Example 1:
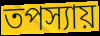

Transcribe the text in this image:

তপস্যায়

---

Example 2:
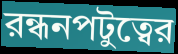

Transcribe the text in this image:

রন্ধনপটুত্বের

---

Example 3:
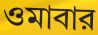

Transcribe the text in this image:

ওমাবার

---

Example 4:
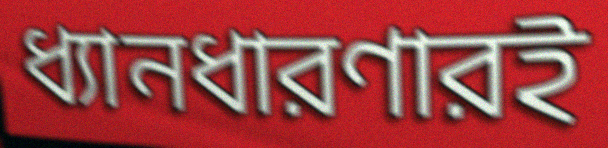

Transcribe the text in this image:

ধ্যানধারণারই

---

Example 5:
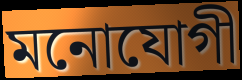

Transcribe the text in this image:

মনোযোগী